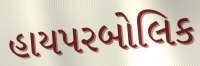
હાયપરબોલિક